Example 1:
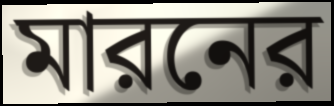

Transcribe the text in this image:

মারনের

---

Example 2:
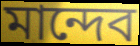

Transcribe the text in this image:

মান্দেব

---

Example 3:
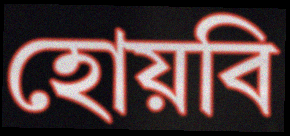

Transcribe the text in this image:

হোয়বি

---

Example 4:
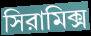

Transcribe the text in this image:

সিরামিক্স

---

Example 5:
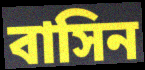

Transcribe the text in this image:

বাসিন